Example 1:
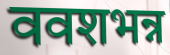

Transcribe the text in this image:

ववशभन्न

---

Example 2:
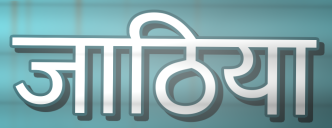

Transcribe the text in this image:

जाठिया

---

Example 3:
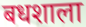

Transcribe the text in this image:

बधशाला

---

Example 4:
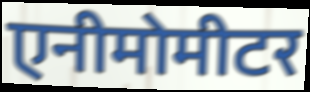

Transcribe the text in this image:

एनीमोमीटर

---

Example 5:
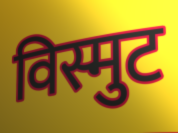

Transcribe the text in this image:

विस्मुट